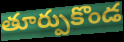
తూర్పుకొండ